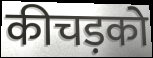
कीचड़को